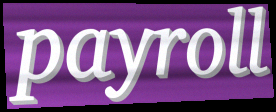
payroll